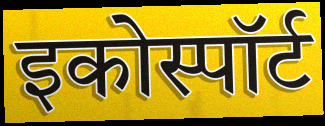
इकोस्पॉर्ट